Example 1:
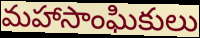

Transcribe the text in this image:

మహాసాంఘికులు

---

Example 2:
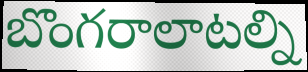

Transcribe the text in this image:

బొంగరాలాటల్ని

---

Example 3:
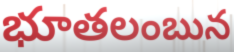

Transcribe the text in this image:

భూతలంబున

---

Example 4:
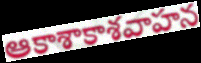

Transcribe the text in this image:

ఆకాశాకాశవాహన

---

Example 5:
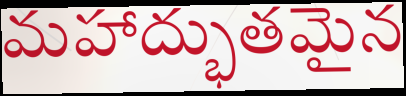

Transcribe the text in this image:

మహాద్భుతమైన